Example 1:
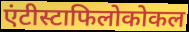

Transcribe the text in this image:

एंटीस्टाफिलोकोकल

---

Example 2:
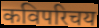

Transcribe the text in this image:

कविपरिचय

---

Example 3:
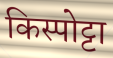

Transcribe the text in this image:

किस्पोट्टा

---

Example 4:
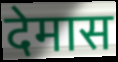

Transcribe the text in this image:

देमास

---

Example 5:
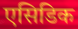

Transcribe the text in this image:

एसिडिक